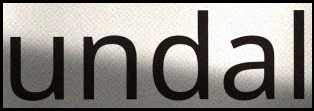
undal